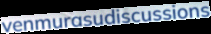
venmurasudiscussions